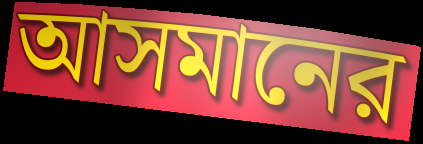
আসমানের